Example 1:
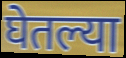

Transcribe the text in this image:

घेतल्या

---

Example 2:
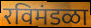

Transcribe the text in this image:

रविमंडळा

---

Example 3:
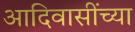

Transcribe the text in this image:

आदिवासींच्या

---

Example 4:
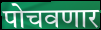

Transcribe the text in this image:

पोचवणार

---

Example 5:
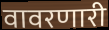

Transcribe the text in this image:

वावरणारी